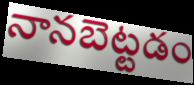
నానబెట్టడం